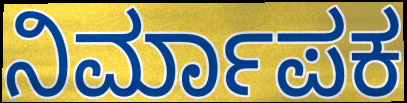
ನಿರ್ಮಾಪಕ